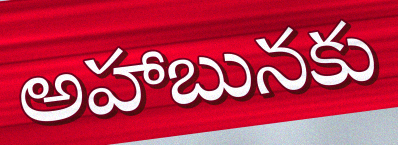
అహాబునకు